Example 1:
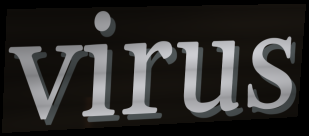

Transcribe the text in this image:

virus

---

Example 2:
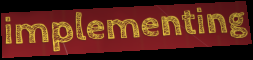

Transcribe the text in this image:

implementing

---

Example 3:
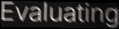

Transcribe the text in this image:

Evaluating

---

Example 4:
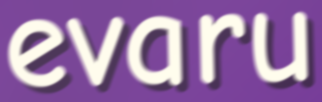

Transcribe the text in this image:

evaru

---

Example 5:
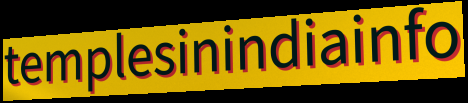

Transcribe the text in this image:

templesinindiainfo